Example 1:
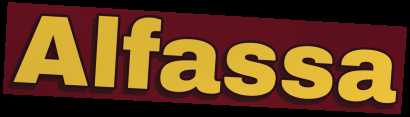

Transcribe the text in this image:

Alfassa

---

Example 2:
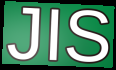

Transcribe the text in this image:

JIS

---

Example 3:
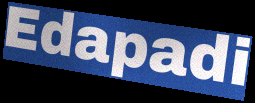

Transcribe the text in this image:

Edapadi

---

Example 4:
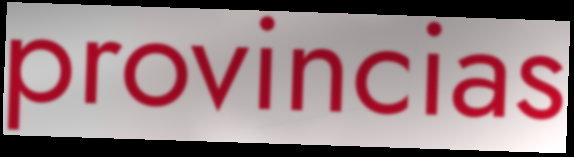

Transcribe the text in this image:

provincias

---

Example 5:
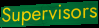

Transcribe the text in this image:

Supervisors